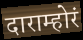
दाराम्होरं